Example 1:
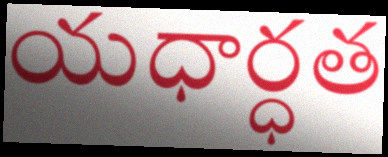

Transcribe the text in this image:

యధార్ధత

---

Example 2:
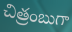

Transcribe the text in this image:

చిత్రంబుగా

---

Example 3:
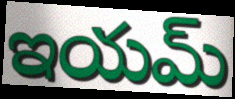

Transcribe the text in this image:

ఇయమ్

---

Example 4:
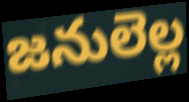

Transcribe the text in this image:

జనులెల్ల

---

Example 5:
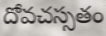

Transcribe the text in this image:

దోవచస్సతం